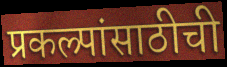
प्रकल्पांसाठीची